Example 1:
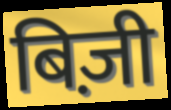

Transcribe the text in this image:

बिज़ी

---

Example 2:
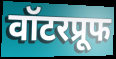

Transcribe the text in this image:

वॉटरप्रूफ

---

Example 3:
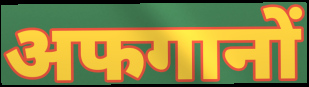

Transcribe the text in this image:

अफगानों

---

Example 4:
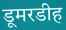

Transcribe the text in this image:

डूमरडीह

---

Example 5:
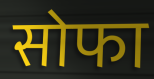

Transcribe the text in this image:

सोफा